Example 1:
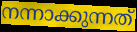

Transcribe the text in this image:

നന്നാക്കുന്നത്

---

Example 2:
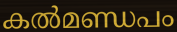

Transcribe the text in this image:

കൽമണ്ഡപം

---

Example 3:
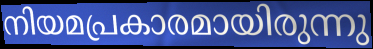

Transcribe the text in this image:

നിയമപ്രകാരമായിരുന്നു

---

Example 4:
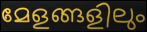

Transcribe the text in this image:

മേളങ്ങളിലും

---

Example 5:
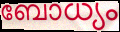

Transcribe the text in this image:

ബോധ്യം